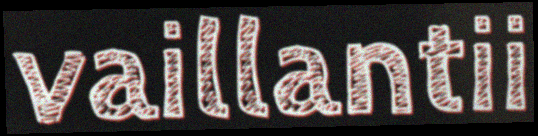
vaillantii